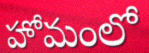
హోమంలో